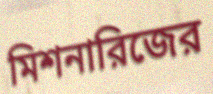
মিশনারিজের